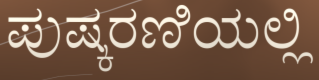
ಪುಷ್ಕರಣಿಯಲ್ಲಿ